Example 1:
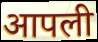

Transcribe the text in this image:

आपली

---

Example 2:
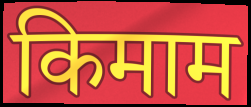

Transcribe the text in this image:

किमाम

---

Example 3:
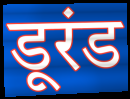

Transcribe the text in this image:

डूरंड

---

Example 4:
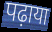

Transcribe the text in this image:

पढ़ाया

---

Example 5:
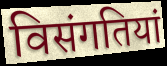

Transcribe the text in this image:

विसंगतियां